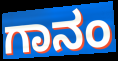
ಗಾನಂ